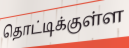
தொட்டிக்குள்ள